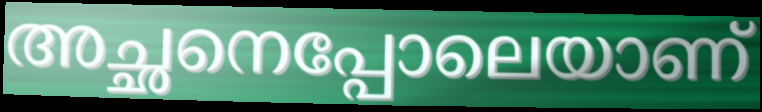
അച്ഛനെപ്പോലെയാണ്